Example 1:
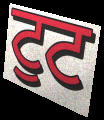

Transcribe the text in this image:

ਟੁਟ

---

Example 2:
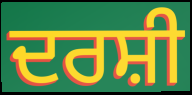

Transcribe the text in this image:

ਦਰਸ਼ੀ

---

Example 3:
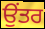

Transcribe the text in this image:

ਉਂਤਰ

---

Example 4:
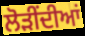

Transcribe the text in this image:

ਲੋੜੀਂਦੀਆਂ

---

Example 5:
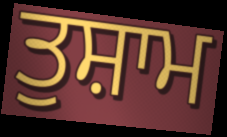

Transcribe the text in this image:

ਤੁਸ਼ਾਮ